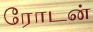
ரோடன்